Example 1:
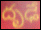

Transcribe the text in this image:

దృఢే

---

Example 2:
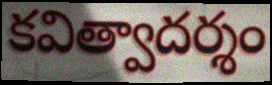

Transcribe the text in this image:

కవిత్వాదర్శం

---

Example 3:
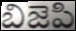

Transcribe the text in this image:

బిజెపి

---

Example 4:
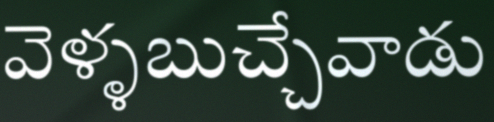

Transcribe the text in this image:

వెళ్ళబుచ్చేవాడు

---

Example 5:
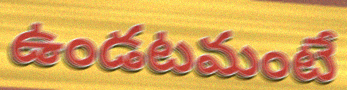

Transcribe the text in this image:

ఉండటమంటే